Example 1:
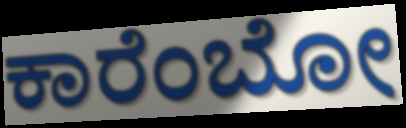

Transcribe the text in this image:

ಕಾರೆಂಬೋ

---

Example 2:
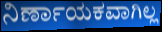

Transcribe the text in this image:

ನಿರ್ಣಾಯಕವಾಗಿಲ್ಲ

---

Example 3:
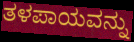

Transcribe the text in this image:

ತಳಪಾಯವನ್ನು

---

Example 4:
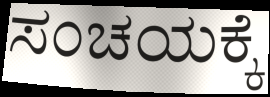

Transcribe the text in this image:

ಸಂಚಯಕ್ಕೆ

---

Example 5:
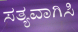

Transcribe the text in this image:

ಸತ್ಯವಾಗಿಸಿ